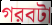
গরবটা